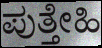
ಪುತ್ತೇಹಿ